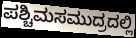
ಪಶ್ಚಿಮಸಮುದ್ರದಲ್ಲಿ